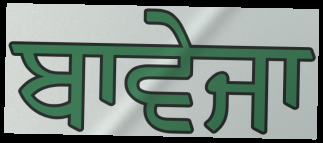
ਬਾਵੇਜਾ